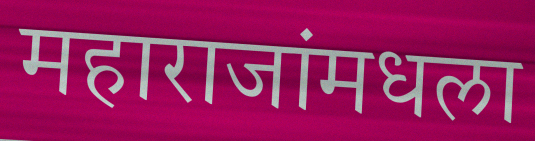
महाराजांमधला